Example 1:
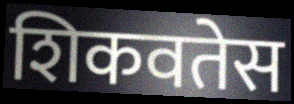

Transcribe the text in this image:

शिकवतेस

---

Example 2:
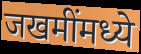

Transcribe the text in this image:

जखमींमध्ये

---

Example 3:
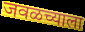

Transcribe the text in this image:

जवळच्याला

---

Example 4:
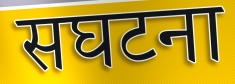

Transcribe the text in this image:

सघटना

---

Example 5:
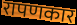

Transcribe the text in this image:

रापणकार